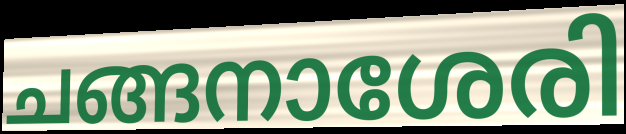
ചങ്ങനാശേരി